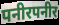
पनीरपनीर